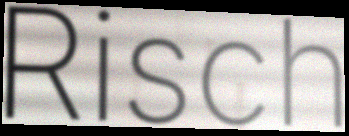
Risch